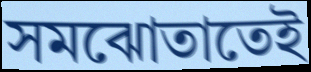
সমঝোতাতেই